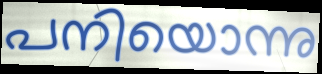
പനിയൊന്നു